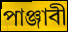
পাঞ্জাবী